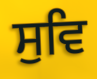
ਸੁਵਿ